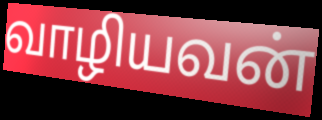
வாழியவன்